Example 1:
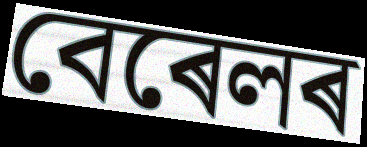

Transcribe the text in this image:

বেৰেলৰ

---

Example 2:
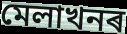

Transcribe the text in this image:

মেলাখনৰ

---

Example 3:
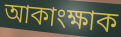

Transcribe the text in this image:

আকাংক্ষাক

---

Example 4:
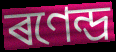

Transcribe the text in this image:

ৰণেন্দ্ৰ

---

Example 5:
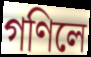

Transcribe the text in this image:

গণিলে